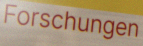
Forschungen